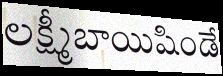
లక్ష్మీబాయిషిండే